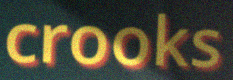
crooks